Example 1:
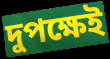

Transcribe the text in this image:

দুপক্ষেই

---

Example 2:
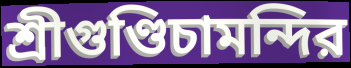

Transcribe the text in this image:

শ্রীগুণ্ডিচামন্দির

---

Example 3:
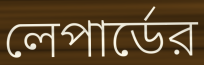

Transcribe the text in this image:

লেপার্ডের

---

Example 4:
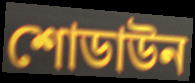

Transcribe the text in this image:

শোডাউন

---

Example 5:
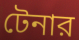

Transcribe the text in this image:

টেনার